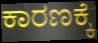
ಕಾರಣಕ್ಕೆ